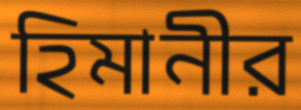
হিমানীর